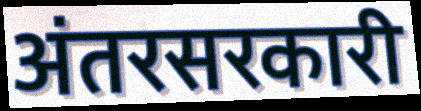
अंतरसरकारी